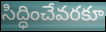
సిద్ధించేవరకూ